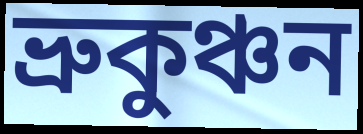
ভ্রুকুঞ্চন